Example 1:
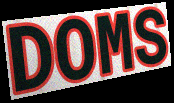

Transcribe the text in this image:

DOMS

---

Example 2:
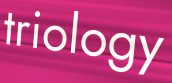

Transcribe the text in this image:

triology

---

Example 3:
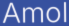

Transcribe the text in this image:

Amol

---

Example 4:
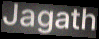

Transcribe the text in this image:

Jagath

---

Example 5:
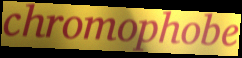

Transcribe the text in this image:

chromophobe